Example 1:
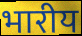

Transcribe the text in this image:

भारीय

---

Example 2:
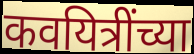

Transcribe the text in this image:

कवयित्रींच्या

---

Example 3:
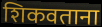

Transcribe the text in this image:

शिकवताना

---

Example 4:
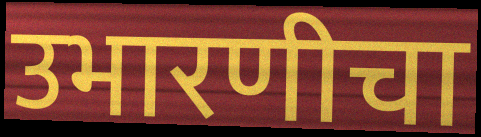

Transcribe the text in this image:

उभारणीचा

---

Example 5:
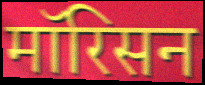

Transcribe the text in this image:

मॉरिसन